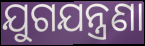
ଯୁଗଯନ୍ତ୍ରଣା